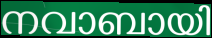
നവാബായി